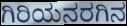
ಗಿರಿಯನರಗಿನ